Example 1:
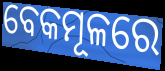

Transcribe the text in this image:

ବେକମୂଳରେ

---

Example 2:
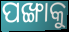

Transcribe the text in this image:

ପଙ୍ଖାକୁ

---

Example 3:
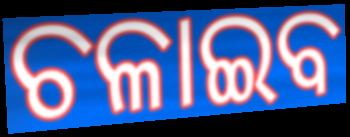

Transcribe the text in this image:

ଚଳାଇବ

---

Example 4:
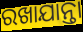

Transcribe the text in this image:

ରଖାଯାନ୍ତା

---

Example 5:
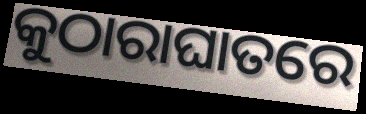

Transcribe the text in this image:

କୁଠାରାଘାତରେ